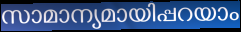
സാമാന്യമായിപ്പറയാം